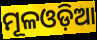
ମୂଳଓଡ଼ିଆ